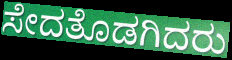
ಸೇದತೊಡಗಿದರು